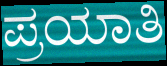
ಪ್ರಯಾತಿ